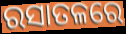
ରସାତଳରେ